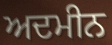
ਅਦਮੀਨ